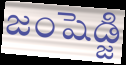
జంషెడ్జి